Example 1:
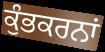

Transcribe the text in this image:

ਕੁੰਭਕਰਨਾਂ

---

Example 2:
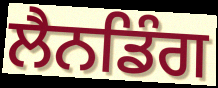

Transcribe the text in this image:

ਲੈਨਡਿੰਗ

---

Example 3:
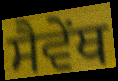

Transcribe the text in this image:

ਸੈਵੇਂਥ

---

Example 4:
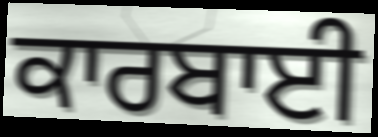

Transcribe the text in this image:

ਕਾਰਬਾਈ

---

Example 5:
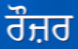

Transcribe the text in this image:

ਰੌਜ਼ਰ